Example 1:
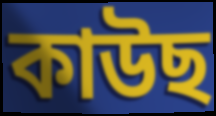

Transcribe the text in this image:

কাউছ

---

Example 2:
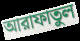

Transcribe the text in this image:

আরাফাতুল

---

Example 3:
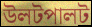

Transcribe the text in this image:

উলটপালট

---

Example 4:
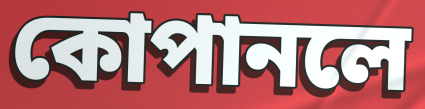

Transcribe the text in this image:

কোপানলে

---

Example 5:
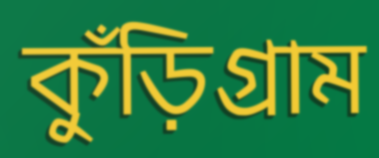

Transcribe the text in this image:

কুঁড়িগ্রাম